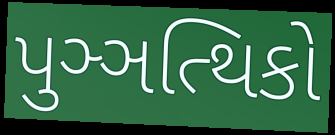
પુઞ્ઞત્થિકો